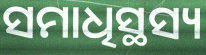
ସମାଧିସ୍ଥସ୍ୟ